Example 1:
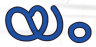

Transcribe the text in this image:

യം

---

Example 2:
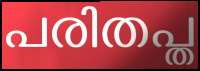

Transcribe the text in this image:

പരിതപ്ത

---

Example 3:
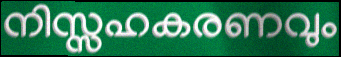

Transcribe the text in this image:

നിസ്സഹകരണവും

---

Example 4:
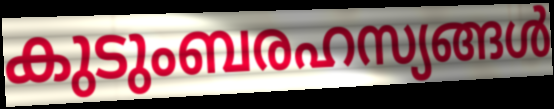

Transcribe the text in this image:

കുടുംബരഹസ്യങ്ങൾ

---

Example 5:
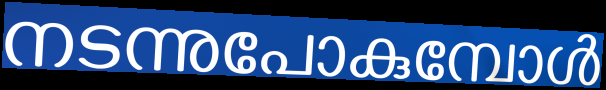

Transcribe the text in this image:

നടന്നുപോകുമ്പോൾ